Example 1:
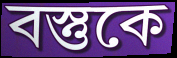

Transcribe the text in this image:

বস্তুকে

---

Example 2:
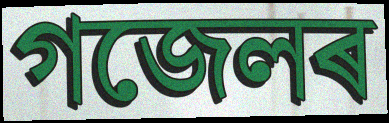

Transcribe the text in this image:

গজেলৰ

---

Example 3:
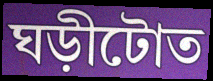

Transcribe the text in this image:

ঘড়ীটোত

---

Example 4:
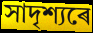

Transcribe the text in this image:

সাদৃশ্যৰে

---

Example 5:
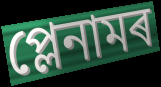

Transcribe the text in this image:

প্লেনামৰ